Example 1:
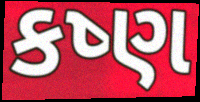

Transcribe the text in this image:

કષ્ણ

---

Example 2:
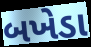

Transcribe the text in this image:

બખેડા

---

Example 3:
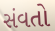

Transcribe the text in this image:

સંવતો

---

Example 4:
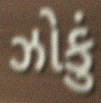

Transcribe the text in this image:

ઝોકું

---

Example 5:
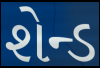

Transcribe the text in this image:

શેન્ડ